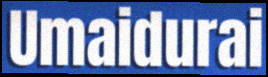
Umaidurai